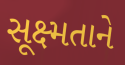
સૂક્ષ્મતાને